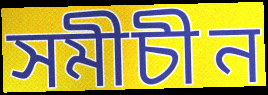
সমীচীন